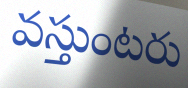
వస్తుంటరు